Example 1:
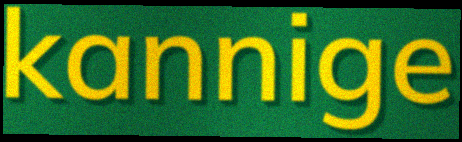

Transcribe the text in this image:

kannige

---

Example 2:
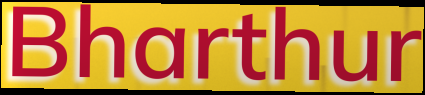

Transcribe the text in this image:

Bharthur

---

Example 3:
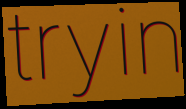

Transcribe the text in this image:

tryin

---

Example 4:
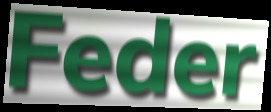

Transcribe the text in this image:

Feder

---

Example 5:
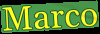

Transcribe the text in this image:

Marco